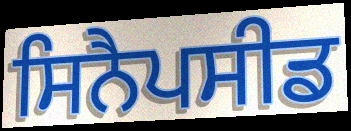
ਸਿਨੈਪਸੀਡ